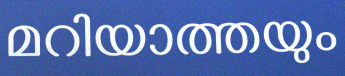
മറിയാത്തയും